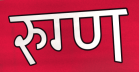
रुग्ण